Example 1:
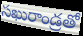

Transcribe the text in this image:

సఖురాండ్రతో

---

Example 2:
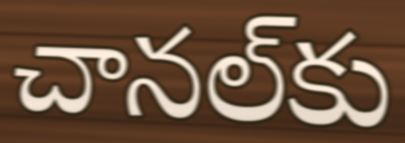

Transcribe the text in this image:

చానల్‌కు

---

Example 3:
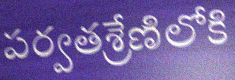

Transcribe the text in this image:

పర్వతశ్రేణిలోకి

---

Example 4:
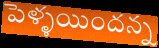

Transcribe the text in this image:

పెళ్ళయిందన్న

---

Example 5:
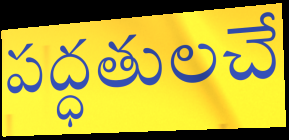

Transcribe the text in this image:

పద్ధతులచే